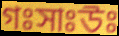
গঃসাঃউঃ